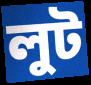
লুট